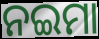
ନଇମା